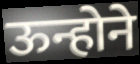
ऊन्होने